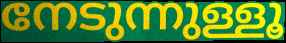
നേടുന്നുള്ളൂ